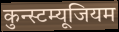
कुन्स्टम्यूजियम